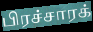
பிரச்சாரக்